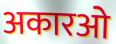
अकारओ